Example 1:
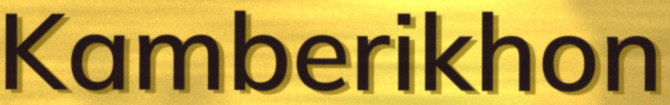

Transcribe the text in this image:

Kamberikhon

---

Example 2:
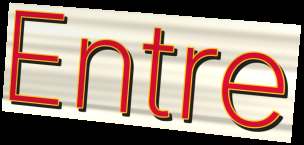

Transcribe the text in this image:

Entre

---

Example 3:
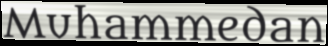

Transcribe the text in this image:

Muhammedan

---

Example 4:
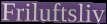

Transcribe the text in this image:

Friluftsliv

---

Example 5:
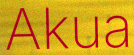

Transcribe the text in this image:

Akua